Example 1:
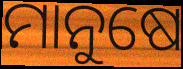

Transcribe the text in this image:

ମାନୁଷେ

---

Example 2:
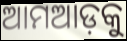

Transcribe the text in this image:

ଆମଆଡ଼କୁ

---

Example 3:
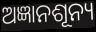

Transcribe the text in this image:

ଅଜ୍ଞାନଶୂନ୍ୟ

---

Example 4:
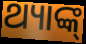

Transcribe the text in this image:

ଥ୍ୟାଙ୍କ୍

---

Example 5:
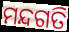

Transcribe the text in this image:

ମନ୍ଦଗତି